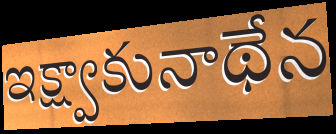
ఇక్ష్వాకునాథేన